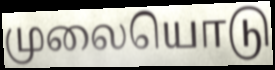
முலையொடு